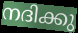
നദിക്കു